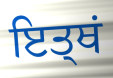
ਇਤ੍ਥਂ